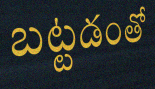
బట్టడంతో